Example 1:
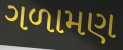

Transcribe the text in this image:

ગળામણ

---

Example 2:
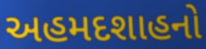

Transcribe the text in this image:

અહમદશાહનો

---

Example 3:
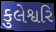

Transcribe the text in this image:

કુલેશ્વરિ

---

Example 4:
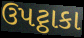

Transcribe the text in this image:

ઉપટ્ઠાકા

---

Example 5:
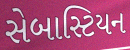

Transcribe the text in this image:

સેબાસ્ટિયન